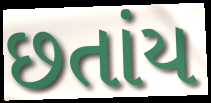
છતાંય